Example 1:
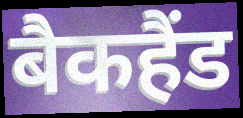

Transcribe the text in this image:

बैकहैंड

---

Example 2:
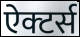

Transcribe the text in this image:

ऐक्‍टर्स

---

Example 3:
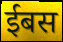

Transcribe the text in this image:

ईबस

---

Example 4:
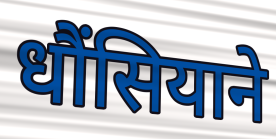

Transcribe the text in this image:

धौंसियाने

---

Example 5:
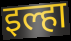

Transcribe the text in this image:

इल्हा